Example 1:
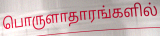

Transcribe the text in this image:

பொருளாதாரங்களில்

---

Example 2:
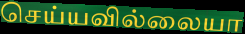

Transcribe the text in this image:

செய்யவில்லையா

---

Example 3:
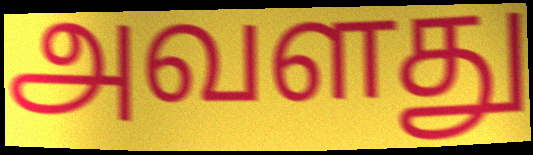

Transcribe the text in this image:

அவளது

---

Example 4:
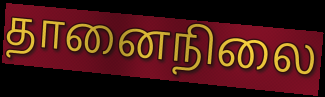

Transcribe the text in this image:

தானைநிலை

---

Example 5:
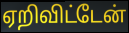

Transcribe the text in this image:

ஏறிவிட்டேன்